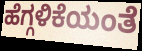
ಹೆಗ್ಗಳಿಕೆಯಂತೆ